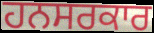
ਹਨਸਰਕਾਰ